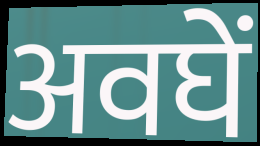
अवघें